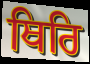
ਥਿਰਿ